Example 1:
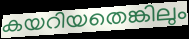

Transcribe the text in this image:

കയറിയതെങ്കിലും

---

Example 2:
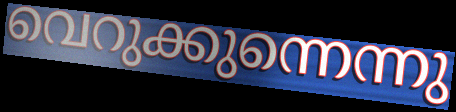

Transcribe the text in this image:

വെറുക്കുന്നെന്നു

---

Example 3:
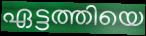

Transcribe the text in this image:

ഏട്ടത്തിയെ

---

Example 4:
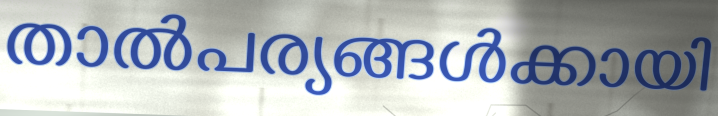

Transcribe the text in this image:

താൽപര്യങ്ങൾക്കായി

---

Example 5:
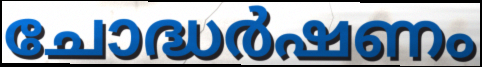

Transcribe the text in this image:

ചോദ്ധർഷണം